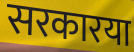
सरकारया